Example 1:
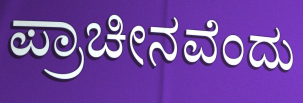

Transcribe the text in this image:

ಪ್ರಾಚೀನವೆಂದು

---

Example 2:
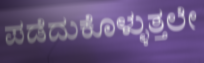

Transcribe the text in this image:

ಪಡೆದುಕೊಳ್ಳುತ್ತಲೇ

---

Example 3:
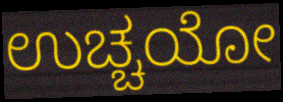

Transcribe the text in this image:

ಉಚ್ಚಯೋ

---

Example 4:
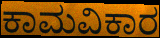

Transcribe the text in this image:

ಕಾಮವಿಕಾರ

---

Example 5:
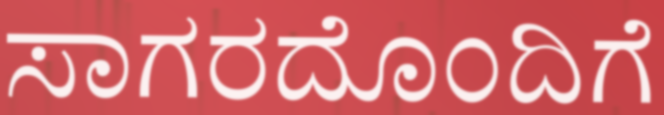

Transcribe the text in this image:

ಸಾಗರದೊಂದಿಗೆ